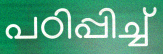
പഠിപ്പിച്ച്